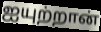
ஐயுற்றான்